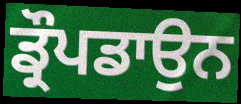
ਡ੍ਰੌਪਡਾਉਨ